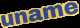
uname